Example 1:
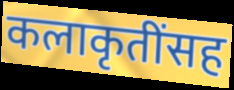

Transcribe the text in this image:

कलाकृतींसह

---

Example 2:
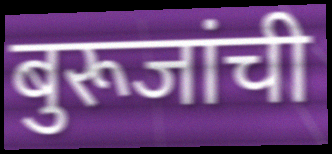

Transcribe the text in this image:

बुरूजांची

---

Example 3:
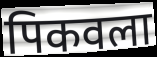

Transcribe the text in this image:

पिकवला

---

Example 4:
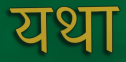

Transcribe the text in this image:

यथा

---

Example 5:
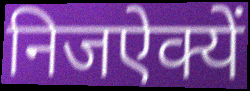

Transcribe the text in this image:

निजऐक्यें